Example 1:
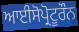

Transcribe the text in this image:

ਆਈਸੋਪ੍ਰੋਟੂਰੌਨ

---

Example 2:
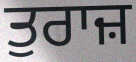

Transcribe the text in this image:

ਤੁਰਾਜ਼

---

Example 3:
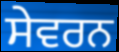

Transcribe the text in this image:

ਸੇਵਰਨ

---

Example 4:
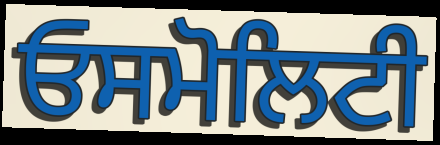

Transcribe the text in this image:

ਓਸਮੋਲਿਟੀ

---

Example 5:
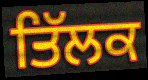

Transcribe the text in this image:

ਤਿੱਲਕ